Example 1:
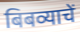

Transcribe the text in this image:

बिबव्याचें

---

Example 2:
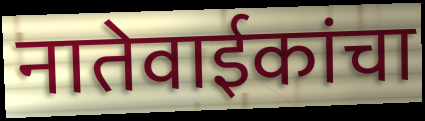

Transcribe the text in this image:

नातेवाईकांचा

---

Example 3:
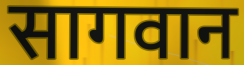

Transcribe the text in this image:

सागवान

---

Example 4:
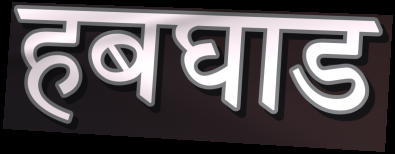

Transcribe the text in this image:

हबघाड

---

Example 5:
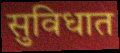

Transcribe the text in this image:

सुविधात